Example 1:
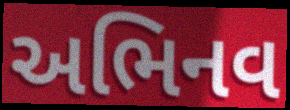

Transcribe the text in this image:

અભિનવ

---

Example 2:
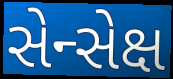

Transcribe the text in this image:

સેન્સેક્ષ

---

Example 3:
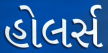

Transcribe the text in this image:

હોલર્સ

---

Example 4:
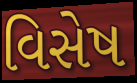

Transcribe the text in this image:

વિસેષ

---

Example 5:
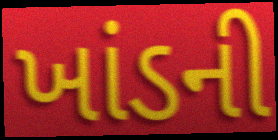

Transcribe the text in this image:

ખાંડની